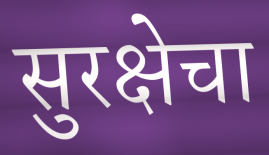
सुरक्षेचा